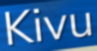
Kivu